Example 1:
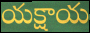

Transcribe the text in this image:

యక్షాయ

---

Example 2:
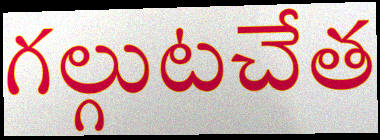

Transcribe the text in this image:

గల్గుటచేత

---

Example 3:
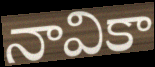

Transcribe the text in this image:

నావికా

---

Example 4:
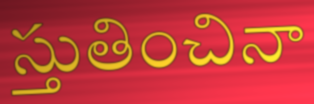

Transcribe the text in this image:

స్తుతించినా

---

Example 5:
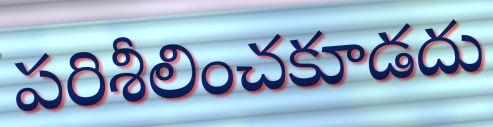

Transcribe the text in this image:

పరిశీలించకూడదు